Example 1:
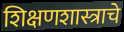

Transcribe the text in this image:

शिक्षणशास्त्राचे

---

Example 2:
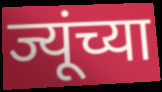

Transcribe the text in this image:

ज्यूंच्या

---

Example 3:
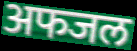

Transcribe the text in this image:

अफजल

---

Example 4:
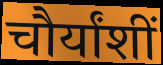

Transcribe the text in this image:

चौर्यांशीं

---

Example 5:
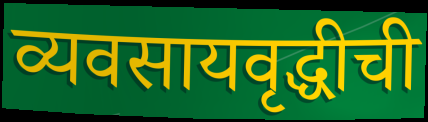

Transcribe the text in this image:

व्यवसायवृद्धीची